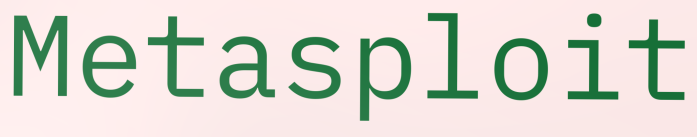
Metasploit